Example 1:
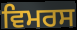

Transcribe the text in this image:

ਵਿਮਰਸ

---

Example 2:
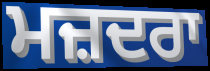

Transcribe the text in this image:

ਮਜ਼ਦਰਾ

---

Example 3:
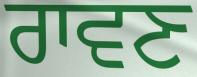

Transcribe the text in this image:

ਰਾਵਣ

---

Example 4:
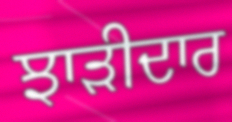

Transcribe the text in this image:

ਝਾੜੀਦਾਰ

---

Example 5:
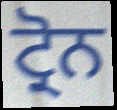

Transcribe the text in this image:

ਟ੍ਰੋਨ